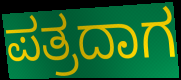
ಪತ್ರದಾಗ